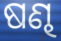
ଷଣ୍ଢ